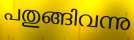
പതുങ്ങിവന്നു